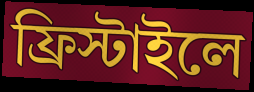
ফ্রিস্টাইলে